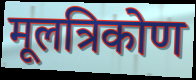
मूलत्रिकोण